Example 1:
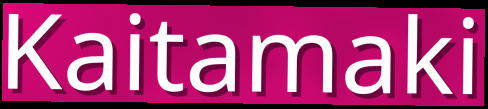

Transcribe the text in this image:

Kaitamaki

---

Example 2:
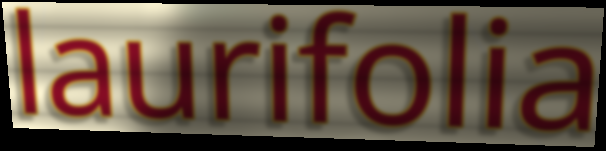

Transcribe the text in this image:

laurifolia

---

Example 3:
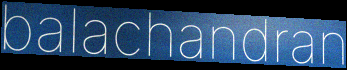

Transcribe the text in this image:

balachandran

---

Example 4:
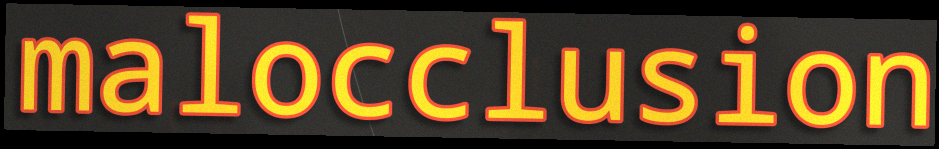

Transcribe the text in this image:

malocclusion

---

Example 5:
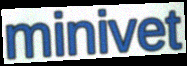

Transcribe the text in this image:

minivet